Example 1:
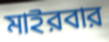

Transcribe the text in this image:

মাইরবার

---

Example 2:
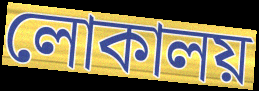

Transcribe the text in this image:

লোকালয়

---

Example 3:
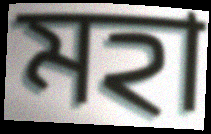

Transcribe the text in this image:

মহা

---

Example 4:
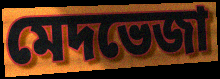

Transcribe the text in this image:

মেদভেজা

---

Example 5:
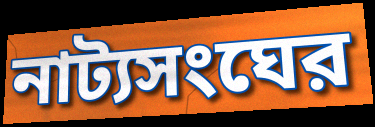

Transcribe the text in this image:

নাট্যসংঘের